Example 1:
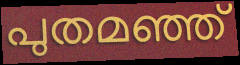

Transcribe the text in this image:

പുതമഞ്ഞ്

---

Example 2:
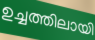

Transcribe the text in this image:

ഉച്ചത്തിലായി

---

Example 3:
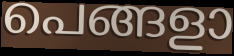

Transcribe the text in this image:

പെങ്ങളാ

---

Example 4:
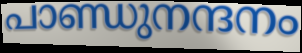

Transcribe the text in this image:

പാണ്ഡുനന്ദനം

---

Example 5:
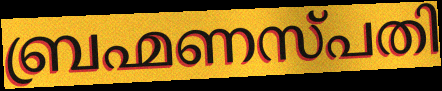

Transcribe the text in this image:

ബ്രഹ്മണസ്പതി